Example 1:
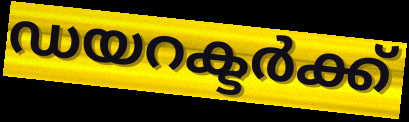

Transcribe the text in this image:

ഡയറക്ടർക്ക്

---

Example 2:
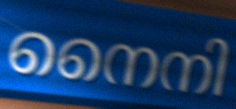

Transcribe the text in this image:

നൈനി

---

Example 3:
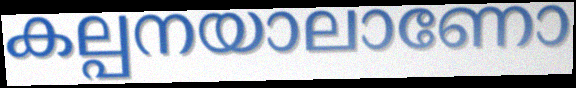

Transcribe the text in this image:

കല്പനയാലാണോ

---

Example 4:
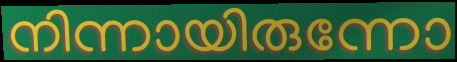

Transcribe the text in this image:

നിന്നായിരുന്നോ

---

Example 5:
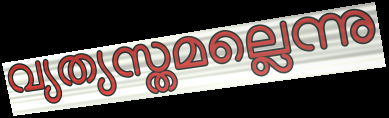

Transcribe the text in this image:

വ്യത്യസ്തമല്ലെന്നു